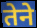
तेने